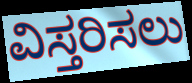
ವಿಸ್ತರಿಸಲು